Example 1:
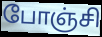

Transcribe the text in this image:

போஞ்சி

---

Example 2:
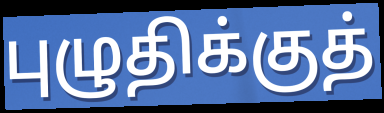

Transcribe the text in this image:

புழுதிக்குத்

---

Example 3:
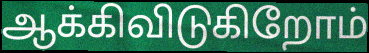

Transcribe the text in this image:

ஆக்கிவிடுகிறோம்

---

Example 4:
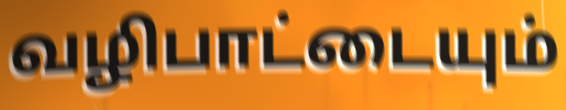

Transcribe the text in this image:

வழிபாட்டையும்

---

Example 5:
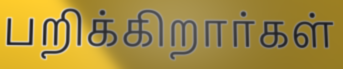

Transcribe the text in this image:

பறிக்கிறார்கள்